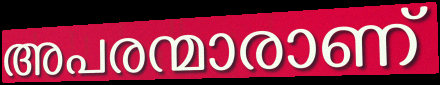
അപരന്മാരാണ്